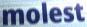
molest